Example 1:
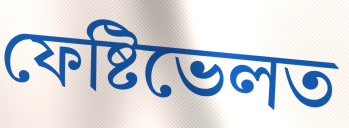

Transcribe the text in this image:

ফেষ্টিভেলত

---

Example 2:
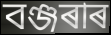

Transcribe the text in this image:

বঞ্জৰাৰ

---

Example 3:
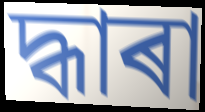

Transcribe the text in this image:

দ্ধাৰা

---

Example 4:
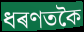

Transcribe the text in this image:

ধৰণতকৈ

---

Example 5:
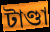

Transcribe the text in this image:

টাণ্ডা